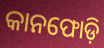
କାନଫୋଡ଼ି